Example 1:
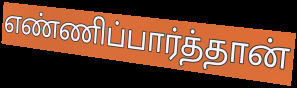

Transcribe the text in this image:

எண்ணிப்பார்த்தான்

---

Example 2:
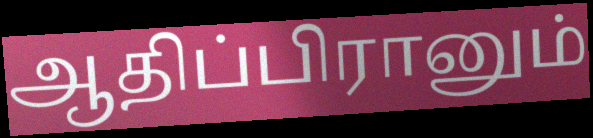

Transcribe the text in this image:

ஆதிப்பிரானும்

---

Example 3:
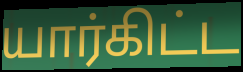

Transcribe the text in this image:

யார்கிட்ட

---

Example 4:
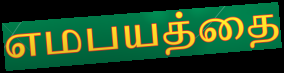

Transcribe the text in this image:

எமபயத்தை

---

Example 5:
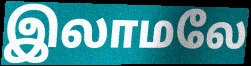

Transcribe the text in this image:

இலாமலே